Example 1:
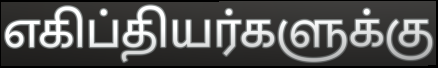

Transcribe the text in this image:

எகிப்தியர்களுக்கு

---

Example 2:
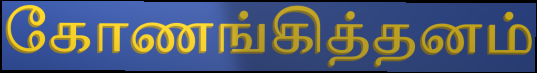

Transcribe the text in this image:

கோணங்கித்தனம்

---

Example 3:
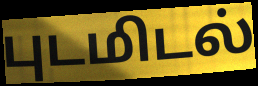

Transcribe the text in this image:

புடமிடல்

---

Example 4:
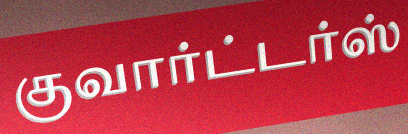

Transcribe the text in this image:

குவார்ட்டர்ஸ்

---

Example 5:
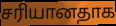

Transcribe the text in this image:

சரியானதாக